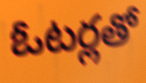
ఓటర్లతో